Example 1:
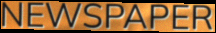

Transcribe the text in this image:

NEWSPAPER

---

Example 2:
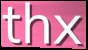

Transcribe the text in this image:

thx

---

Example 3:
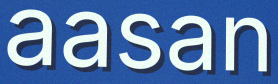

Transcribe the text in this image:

aasan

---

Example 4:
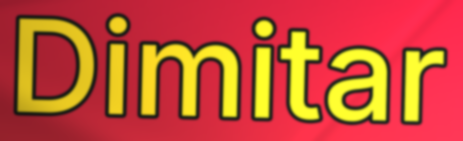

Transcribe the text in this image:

Dimitar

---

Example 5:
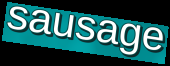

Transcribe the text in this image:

sausage